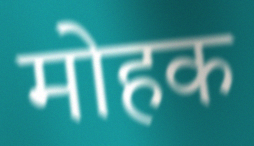
मोहक